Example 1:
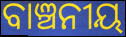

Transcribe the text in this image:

ବାଞ୍ଚନୀୟ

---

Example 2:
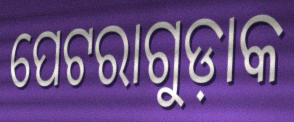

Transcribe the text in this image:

ପେଟରାଗୁଡ଼ାକ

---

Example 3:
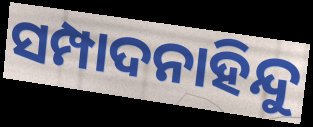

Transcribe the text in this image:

ସମ୍ପାଦନାହିନ୍ଦୁ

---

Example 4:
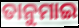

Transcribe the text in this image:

ତାନୁମାଇ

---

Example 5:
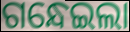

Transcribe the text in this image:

ଗନ୍ଧେଇଲା